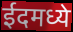
ईदमध्ये